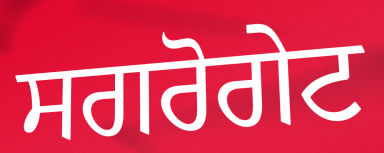
ਸਗਰੋਗੇਟ